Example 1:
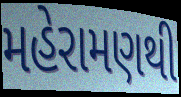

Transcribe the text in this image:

મહેરામણથી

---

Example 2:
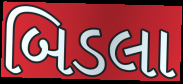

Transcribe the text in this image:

બિડલા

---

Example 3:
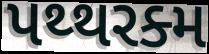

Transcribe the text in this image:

પથ્થરક્મ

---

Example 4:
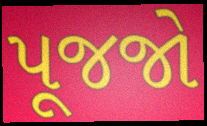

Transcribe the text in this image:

પૂજજો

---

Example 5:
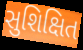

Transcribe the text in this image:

સુશિક્ષિત